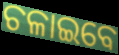
ଚଳାଇବେ